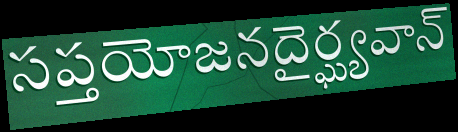
సప్తయోజనదైర్ఘ్యవాన్